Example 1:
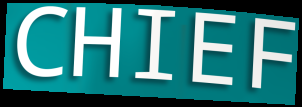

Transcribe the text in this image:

CHIEF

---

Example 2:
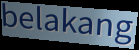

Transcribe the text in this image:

belakang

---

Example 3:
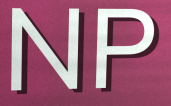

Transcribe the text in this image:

NP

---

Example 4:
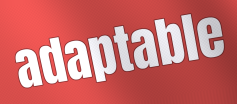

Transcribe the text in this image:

adaptable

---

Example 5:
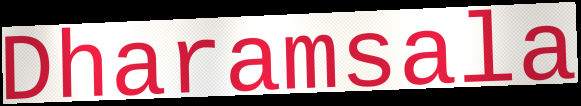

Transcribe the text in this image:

Dharamsala